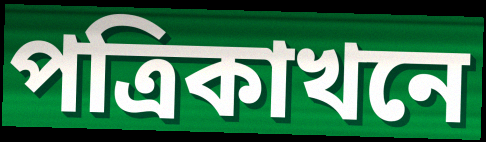
পত্ৰিকাখনে